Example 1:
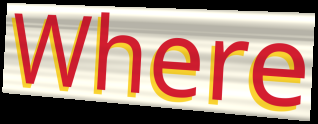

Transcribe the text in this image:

Where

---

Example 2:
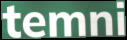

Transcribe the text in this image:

temni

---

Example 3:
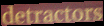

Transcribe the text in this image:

detractors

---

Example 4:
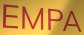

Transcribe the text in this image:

EMPA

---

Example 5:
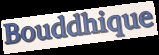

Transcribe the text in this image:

Bouddhique